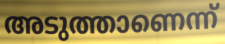
അടുത്താണെന്ന്